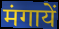
मंगायें